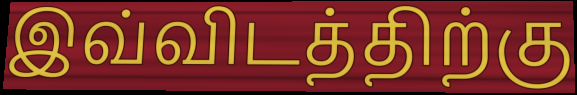
இவ்விடத்திற்கு